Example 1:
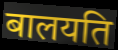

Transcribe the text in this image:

बालयति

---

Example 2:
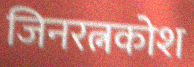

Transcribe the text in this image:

जिनरत्नकोश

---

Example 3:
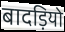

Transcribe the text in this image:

बादड़ियो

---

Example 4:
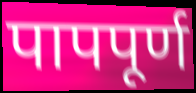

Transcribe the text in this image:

पापपूर्ण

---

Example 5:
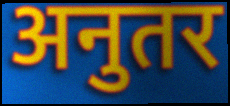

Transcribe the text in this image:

अनुतर